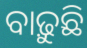
ବାଢ଼ୁଛି